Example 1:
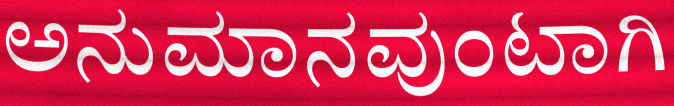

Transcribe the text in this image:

ಅನುಮಾನವುಂಟಾಗಿ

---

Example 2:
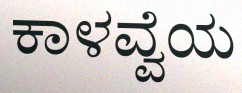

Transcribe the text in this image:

ಕಾಳವ್ವೆಯ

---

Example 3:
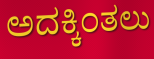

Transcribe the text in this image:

ಅದಕ್ಕಿಂತಲು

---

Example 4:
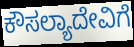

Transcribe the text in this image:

ಕೌಸಲ್ಯಾದೇವಿಗೆ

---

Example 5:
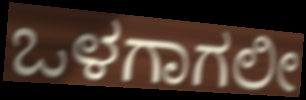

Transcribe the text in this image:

ಒಳಗಾಗಲೀ